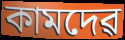
কামদেৱ